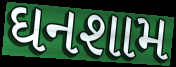
ઘનશામ